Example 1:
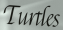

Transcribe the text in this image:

Turtles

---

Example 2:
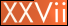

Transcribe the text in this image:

XXVii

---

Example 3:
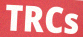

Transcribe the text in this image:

TRCs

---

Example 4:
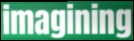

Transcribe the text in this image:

imagining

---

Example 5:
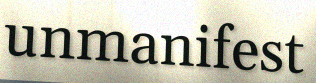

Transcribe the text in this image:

unmanifest